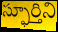
స్ఫూర్తిని